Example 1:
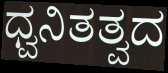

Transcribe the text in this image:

ಧ್ವನಿತತ್ವದ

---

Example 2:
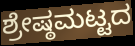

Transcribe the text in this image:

ಶ್ರೇಷ್ಠಮಟ್ಟದ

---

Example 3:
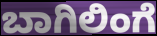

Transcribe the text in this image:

ಬಾಗಿಲಿಂಗೆ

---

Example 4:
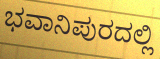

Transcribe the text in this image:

ಭವಾನಿಪುರದಲ್ಲಿ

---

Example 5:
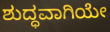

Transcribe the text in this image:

ಶುದ್ಧವಾಗಿಯೇ